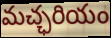
మచ్ఛరియం